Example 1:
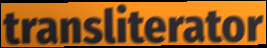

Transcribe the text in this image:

transliterator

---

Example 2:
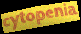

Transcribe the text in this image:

cytopenia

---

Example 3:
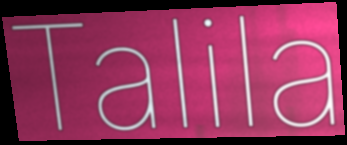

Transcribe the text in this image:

Talila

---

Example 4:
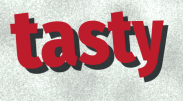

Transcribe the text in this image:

tasty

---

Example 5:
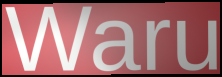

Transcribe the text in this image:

Waru